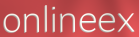
onlineex